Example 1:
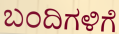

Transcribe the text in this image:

ಬಂದಿಗಳಿಗೆ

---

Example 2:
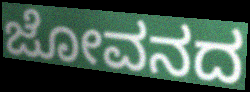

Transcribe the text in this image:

ಜೋವನದ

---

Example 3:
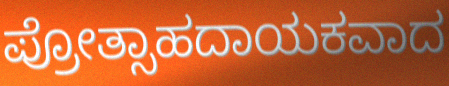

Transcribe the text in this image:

ಪ್ರೋತ್ಸಾಹದಾಯಕವಾದ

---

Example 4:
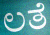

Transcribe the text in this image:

ಲತೆ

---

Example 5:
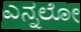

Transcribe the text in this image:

ಎನ್ನಲೋ